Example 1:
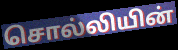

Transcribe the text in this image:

சொல்லியின்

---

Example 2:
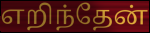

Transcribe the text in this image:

எறிந்தேன்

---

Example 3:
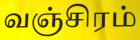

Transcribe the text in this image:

வஞ்சிரம்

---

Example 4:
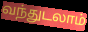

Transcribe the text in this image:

வந்துடலாம்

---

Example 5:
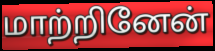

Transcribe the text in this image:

மாற்றினேன்